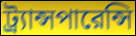
ট্র্যান্সপারেন্সি